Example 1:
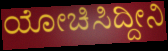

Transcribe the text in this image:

ಯೋಚಿಸಿದ್ದೀನಿ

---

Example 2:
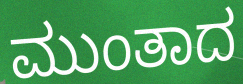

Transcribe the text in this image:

ಮುಂತಾದ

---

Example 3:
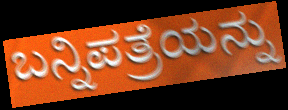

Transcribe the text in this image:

ಬನ್ನಿಪತ್ರೆಯನ್ನು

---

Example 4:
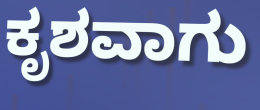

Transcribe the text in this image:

ಕೃಶವಾಗು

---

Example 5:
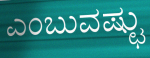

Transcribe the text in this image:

ಎಂಬುವಷ್ಟು